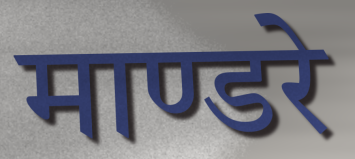
माण्डरे